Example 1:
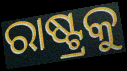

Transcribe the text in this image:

ରାଷ୍ଟ୍ରକୁ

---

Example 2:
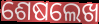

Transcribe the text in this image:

ଶେଷଲେଖ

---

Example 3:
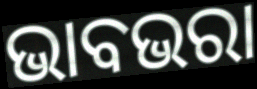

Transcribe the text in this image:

ଭାବଭରା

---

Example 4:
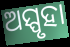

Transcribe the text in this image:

ଅସ୍ପୃହା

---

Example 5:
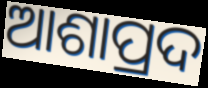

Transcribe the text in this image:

ଆଶାପ୍ରଦ